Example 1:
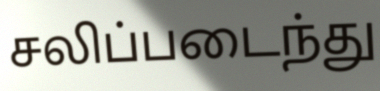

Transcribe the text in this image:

சலிப்படைந்து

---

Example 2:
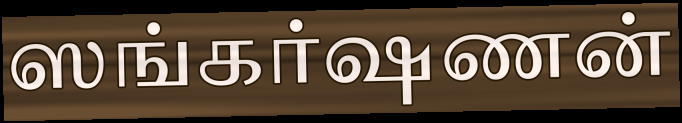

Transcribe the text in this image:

ஸங்கர்ஷணன்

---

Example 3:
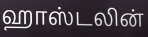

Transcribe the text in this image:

ஹாஸ்டலின்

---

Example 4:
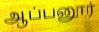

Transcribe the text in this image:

ஆப்பனூர்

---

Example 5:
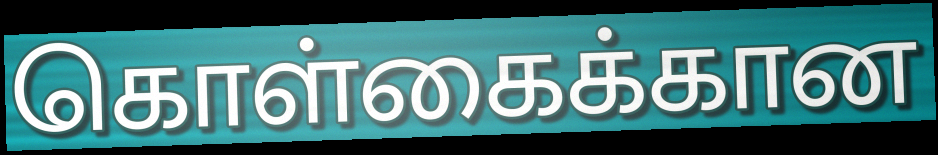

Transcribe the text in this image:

கொள்கைக்கான